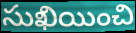
సుఖియించి